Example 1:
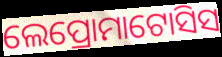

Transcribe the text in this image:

ଲେପ୍ରୋମାଟୋସିସ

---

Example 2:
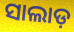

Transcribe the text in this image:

ସାଲାଡ଼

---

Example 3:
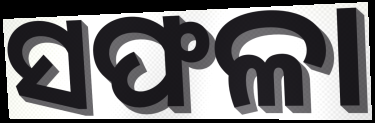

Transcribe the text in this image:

ସଫଳା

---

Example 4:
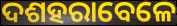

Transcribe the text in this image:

ଦଶହରାବେଳେ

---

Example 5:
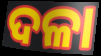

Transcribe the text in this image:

ଦଳା